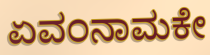
ಏವಂನಾಮಕೇ